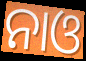
ନାଓ